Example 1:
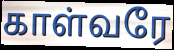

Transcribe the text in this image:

காள்வரே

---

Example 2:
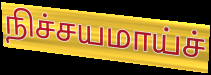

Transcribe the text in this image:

நிச்சயமாய்ச்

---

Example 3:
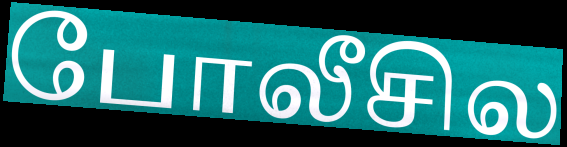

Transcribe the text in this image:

போலீசில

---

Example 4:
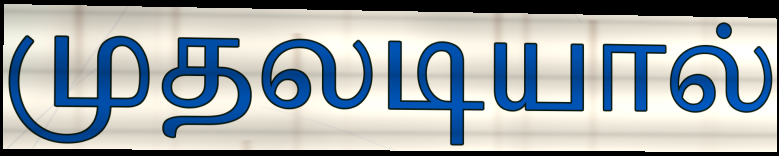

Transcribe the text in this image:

முதலடியால்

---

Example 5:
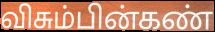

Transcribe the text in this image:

விசும்பின்கண்